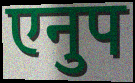
एनुप